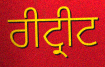
ਰੀਟ੍ਰੀਟ